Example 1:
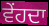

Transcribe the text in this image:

ਵੇਂਹਦਾ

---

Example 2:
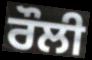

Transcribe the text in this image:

ਰੌਲੀ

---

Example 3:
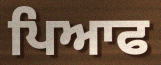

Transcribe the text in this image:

ਪਿਆਫ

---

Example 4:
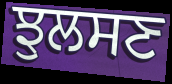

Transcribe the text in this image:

ਝੁਲਸਣ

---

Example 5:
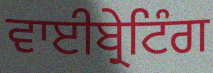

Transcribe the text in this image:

ਵਾਈਬ੍ਰੇਟਿੰਗ